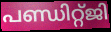
പണ്ഡിറ്റ്ജി